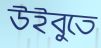
উইবুতে